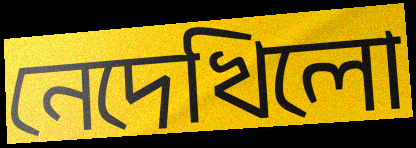
নেদেখিলো